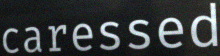
caressed